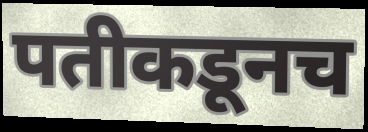
पतीकडूनच